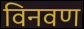
विनवण